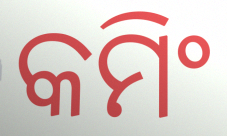
କମିଂ